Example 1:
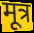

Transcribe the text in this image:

मूत्र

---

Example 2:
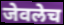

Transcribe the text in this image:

जेवलेच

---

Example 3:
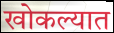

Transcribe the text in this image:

खोकल्यात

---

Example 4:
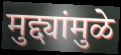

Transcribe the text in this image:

मुद्द्यांमुळे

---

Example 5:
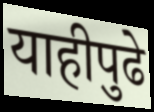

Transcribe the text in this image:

याहीपुढे